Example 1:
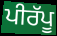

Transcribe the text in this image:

ਪੀਰੱਪੂ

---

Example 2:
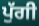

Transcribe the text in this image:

ਪੁੱਗੀ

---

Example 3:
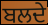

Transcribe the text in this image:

ਬਲਦੇ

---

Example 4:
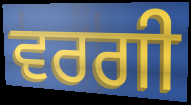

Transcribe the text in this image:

ਵਰਗੀ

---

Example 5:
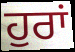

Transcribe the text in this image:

ਹੁਰਾਂ